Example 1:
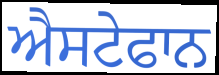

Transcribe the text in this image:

ਐਸਟੇਫਾਨ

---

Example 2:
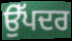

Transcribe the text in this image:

ਉੱਪਦਰ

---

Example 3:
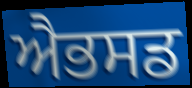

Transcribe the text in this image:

ਐਭਸਡ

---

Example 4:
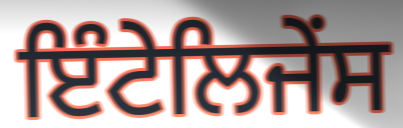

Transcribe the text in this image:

ਇੰਟੇਲਿਜੇਂਸ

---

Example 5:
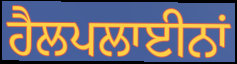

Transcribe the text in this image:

ਹੈਲਪਲਾਈਨਾਂ